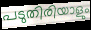
പടുതിരിയാളും